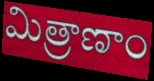
మిత్రాణాం